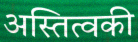
अस्तित्वकी